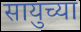
सायुच्या